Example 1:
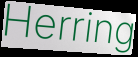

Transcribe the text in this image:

Herring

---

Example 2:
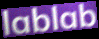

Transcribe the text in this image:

lablab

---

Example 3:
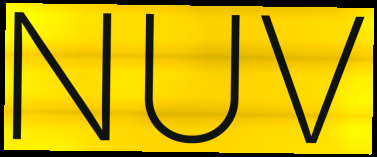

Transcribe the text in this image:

NUV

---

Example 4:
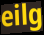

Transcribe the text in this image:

eilg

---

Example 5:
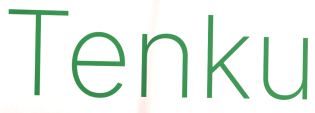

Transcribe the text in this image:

Tenku